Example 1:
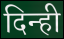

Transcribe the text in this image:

दिन्ही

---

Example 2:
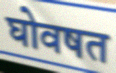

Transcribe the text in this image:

घोवषत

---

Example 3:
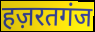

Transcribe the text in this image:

हज़रतगंज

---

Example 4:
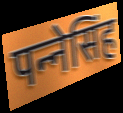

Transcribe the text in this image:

पन्नेसिंह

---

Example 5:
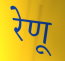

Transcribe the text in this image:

रेणू